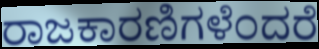
ರಾಜಕಾರಣಿಗಳೆಂದರೆ